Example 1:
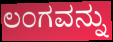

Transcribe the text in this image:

ಲಂಗವನ್ನು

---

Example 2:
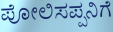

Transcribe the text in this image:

ಪೋಲಿಸಪ್ಪನಿಗೆ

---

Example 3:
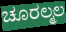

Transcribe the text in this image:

ಚೂರಲ್ಮಲ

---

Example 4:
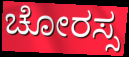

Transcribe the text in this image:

ಚೋರಸ್ಸ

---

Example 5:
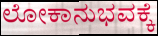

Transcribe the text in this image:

ಲೋಕಾನುಭವಕ್ಕೆ